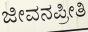
ಜೀವನಪ್ರೀತಿ